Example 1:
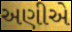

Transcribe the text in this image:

અણીએ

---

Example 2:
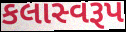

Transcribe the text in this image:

કલાસ્વરૂપ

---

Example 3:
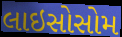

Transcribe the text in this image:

લાઇસોસોમ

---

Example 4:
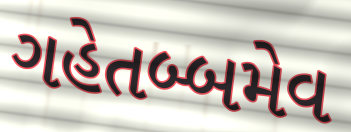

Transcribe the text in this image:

ગહેતબ્બમેવ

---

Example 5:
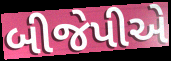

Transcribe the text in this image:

બીજેપીએ